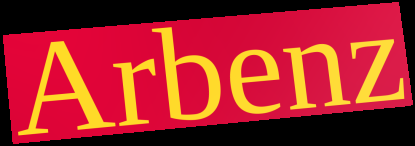
Arbenz